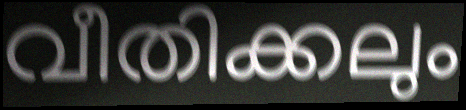
വീതിക്കലും